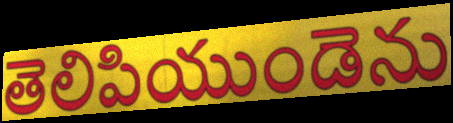
తెలిపియుండెను